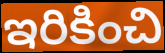
ఇరికించి